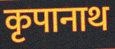
कृपानाथ